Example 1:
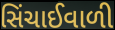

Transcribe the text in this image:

સિંચાઈવાળી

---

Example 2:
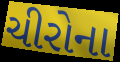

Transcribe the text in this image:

ચીરોના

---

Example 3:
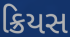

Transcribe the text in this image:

ક્રિયસ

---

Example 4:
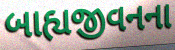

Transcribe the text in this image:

બાહ્યજીવનના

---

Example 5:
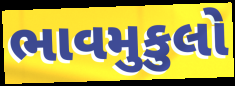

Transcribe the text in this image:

ભાવમુકુલો